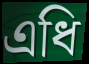
এধি